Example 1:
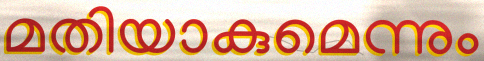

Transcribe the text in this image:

മതിയാകുമെന്നും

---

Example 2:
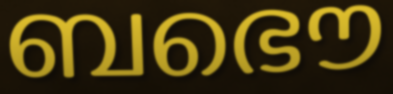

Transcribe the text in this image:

ബഭൌ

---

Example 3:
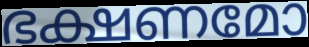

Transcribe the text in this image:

ഭക്ഷണമോ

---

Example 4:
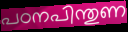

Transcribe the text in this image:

പഠനപിന്തുണ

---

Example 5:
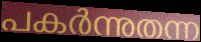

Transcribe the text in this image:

പകർന്നുതന്ന